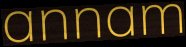
annam